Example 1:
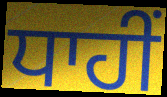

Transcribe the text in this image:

ਧਾਹੀਂ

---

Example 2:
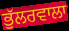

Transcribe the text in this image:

ਭੁੱਲਰਵਾਲਾ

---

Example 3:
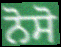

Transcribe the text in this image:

ਨੋਸੋ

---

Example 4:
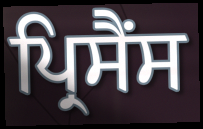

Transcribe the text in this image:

ਪ੍ਰਿਸੈਂਸ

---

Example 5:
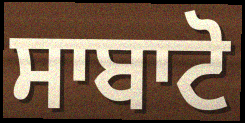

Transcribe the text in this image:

ਸਾਬਾਟੋ